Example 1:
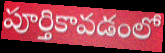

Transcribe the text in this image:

పూర్తికావడంలో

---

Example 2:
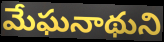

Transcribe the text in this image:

మేఘనాథుని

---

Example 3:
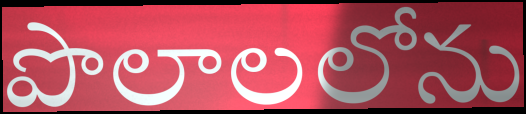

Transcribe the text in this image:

పొలాలలోను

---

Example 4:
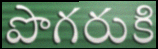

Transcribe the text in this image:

పొగరుకి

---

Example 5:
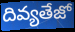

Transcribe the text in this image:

దివ్యతేజో